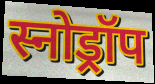
स्नोड्रॉप